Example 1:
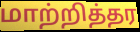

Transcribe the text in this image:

மாற்றித்தர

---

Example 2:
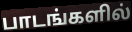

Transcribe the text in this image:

பாடங்களில்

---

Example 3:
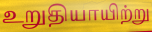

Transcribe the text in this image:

உறுதியாயிற்று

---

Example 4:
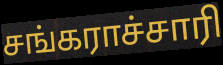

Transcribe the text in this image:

சங்கராச்சாரி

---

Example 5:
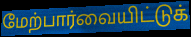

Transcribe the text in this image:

மேற்பார்வையிட்டுக்